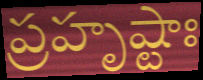
ప్రహృష్టాః